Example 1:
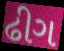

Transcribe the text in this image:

ઢીગ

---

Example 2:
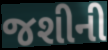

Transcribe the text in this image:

જશીની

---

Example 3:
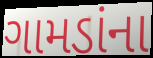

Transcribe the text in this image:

ગામડાંના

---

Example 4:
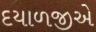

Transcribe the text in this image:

દયાળજીએ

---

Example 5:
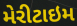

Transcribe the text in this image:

મેરીટાઇમ